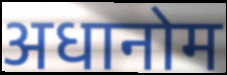
अधानोम